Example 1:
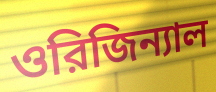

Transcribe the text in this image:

ওরিজিন্যাল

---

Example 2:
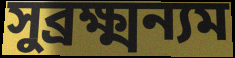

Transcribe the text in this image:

সুব্রক্ষ্মন্যম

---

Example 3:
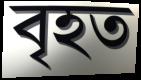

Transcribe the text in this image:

বৃহত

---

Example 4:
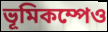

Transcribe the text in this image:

ভূমিকম্পেও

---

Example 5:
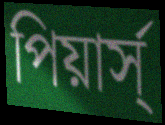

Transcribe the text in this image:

পিয়ার্স্